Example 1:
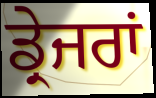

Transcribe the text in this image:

ਡ੍ਰੇਜਰਾਂ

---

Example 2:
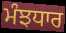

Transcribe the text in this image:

ਮੰਝਧਾਰ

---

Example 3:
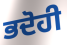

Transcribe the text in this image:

ਭਦੋਹੀ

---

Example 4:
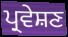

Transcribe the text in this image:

ਪ੍ਰਵੇਸ਼ਣ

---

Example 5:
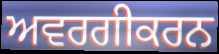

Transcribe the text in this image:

ਅਵਰਗੀਕਰਨ